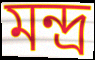
মন্দ্র